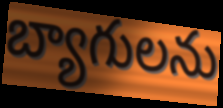
బ్యాగులను